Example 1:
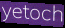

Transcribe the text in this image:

yetoch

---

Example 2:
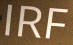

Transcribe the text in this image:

IRF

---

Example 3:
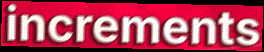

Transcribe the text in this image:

increments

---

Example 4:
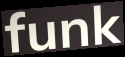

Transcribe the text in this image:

funk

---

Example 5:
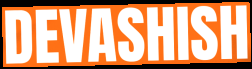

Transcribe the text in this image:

DEVASHISH